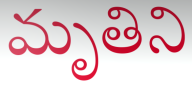
మృతిని